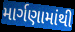
માર્ગણામાંથી